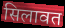
सिलावत